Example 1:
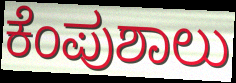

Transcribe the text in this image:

ಕೆಂಪುಶಾಲು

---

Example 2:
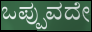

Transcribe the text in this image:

ಒಪ್ಪುವದೇ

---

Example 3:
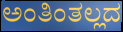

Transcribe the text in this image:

ಅಂತಿಂತಲ್ಲದ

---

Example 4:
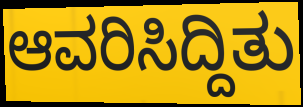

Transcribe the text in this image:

ಆವರಿಸಿದ್ದಿತು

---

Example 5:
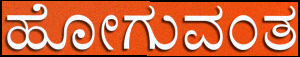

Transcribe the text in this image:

ಹೋಗುವಂತ